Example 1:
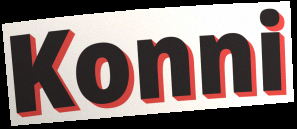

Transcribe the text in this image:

Konni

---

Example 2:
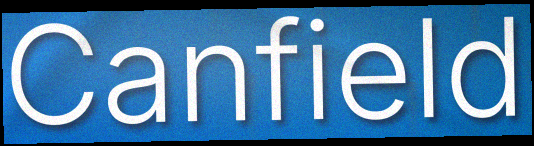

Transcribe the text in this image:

Canfield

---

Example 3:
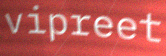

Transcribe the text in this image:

vipreet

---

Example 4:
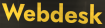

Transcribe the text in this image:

Webdesk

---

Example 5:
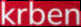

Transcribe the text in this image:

krben